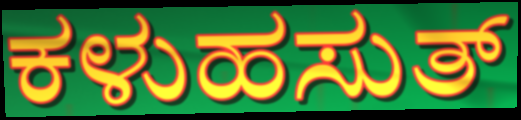
ಕಳುಹಸುತ್